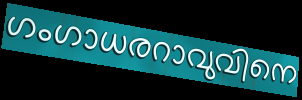
ഗംഗാധരറാവുവിനെ